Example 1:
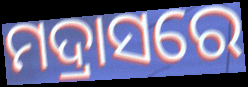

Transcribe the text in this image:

ମଦ୍ରାସରେ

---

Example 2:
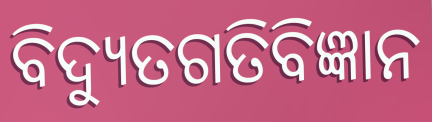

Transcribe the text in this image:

ବିଦ୍ୟୁତଗତିବିଜ୍ଞାନ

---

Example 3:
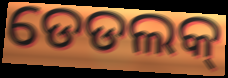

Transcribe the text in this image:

ଡେଡଲକ୍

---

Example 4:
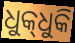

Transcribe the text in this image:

ଧୁକ୍‌ଧୁକି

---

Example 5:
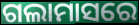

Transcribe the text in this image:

ଗଲାମାସରେ